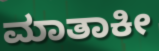
ಮಾತಾಕೀ